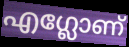
എഗ്ലോണ്